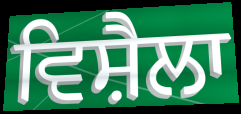
ਵਿਸ਼ੈਲਾ